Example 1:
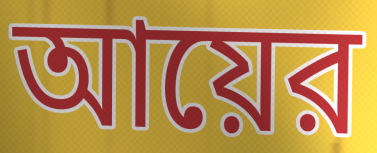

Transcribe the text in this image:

আয়ের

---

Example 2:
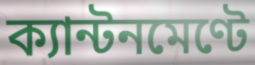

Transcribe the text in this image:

ক্যান্টনমেণ্টে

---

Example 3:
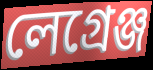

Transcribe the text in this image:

লেগ্রেঞ্জ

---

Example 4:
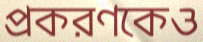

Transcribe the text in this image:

প্রকরণকেও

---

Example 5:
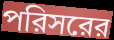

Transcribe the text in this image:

পরিসরের